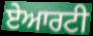
ਏਆਰਟੀ